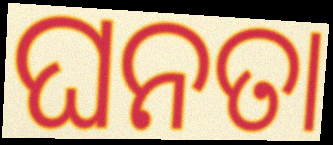
ଘନତା